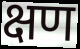
क्षण